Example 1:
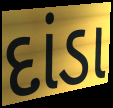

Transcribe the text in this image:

દાંડા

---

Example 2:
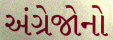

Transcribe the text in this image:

અંગ્રેજોનો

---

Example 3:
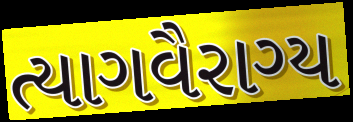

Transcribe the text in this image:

ત્યાગવૈરાગ્ય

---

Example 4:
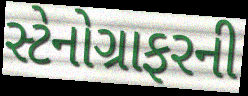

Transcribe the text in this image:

સ્ટેનોગ્રાફરની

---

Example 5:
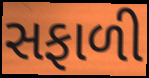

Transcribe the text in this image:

સફાળી